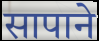
सापाने